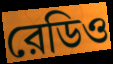
রেডিও